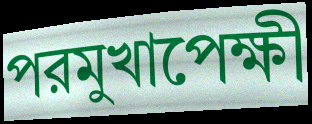
পরমুখাপেক্ষী